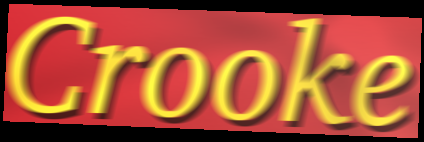
Crooke